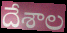
దేశాల